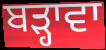
ਬੜ੍ਹਾਵਾ